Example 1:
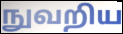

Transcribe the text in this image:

நுவறிய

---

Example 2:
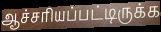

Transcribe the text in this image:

ஆச்சரியப்பட்டிருக்க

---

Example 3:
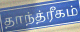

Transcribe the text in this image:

தாந்த்ரீகம்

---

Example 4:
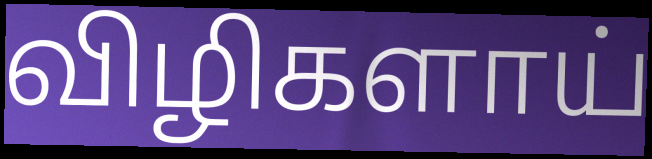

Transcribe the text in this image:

விழிகளாய்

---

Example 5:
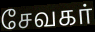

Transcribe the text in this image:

சேவகர்